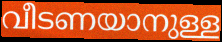
വീടണയാനുള്ള